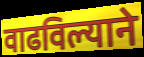
वाढविल्याने